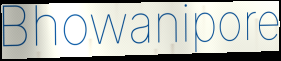
Bhowanipore